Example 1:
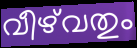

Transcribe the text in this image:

വീഴ്‌വതും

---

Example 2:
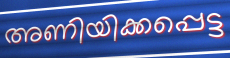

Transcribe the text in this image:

അണിയിക്കപ്പെട്ട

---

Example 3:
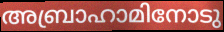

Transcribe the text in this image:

അബ്രാഹാമിനോടു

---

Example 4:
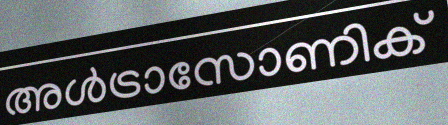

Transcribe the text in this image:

അൾട്രാസോണിക്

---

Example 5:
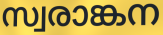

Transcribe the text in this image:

സ്വരാങ്കന